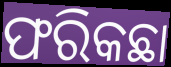
ଫରିକଛା